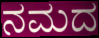
ನಮದ